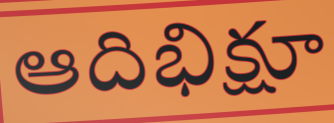
ఆదిభిక్షూ